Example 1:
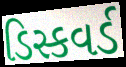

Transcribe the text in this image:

ડિસ્કવર્ડ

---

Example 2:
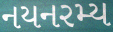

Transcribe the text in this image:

નયનરમ્ય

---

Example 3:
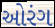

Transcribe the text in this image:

ઓરંગ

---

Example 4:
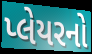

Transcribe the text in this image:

પ્લેયરનો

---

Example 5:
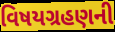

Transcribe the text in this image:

વિષયગ્રહણની